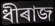
ধীৰাজ